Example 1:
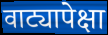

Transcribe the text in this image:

वाट्यापेक्षा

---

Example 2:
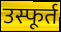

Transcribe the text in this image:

उस्फूर्त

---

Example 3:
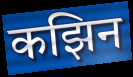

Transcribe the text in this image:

कझिन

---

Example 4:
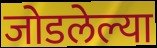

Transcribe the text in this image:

जोडलेल्या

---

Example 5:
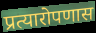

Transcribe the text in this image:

प्रत्यारोपणास